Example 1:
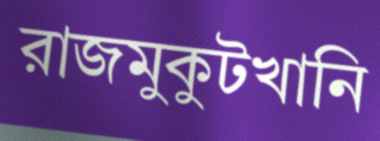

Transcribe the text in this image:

রাজমুকুটখানি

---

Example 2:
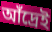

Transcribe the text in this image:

আঁদ্রেই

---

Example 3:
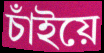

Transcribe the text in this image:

চাঁইয়ে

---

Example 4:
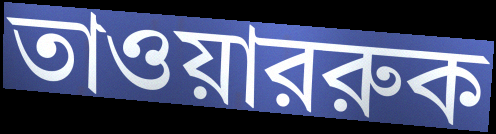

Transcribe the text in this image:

তাওয়াররুক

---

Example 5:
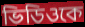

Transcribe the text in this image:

ভিডিওকে